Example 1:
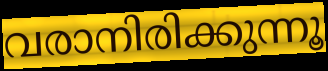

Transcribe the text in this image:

വരാനിരിക്കുന്നൂ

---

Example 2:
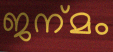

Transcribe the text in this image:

ജന്‌മം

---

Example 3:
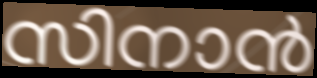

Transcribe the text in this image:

സിനാൻ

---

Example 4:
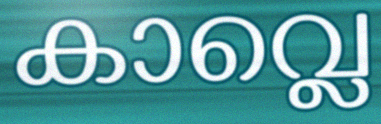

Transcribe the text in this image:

കാവ്ലെ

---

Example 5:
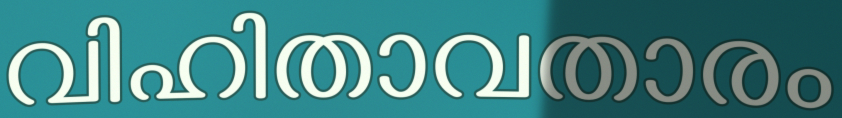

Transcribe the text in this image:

വിഹിതാവതാരം